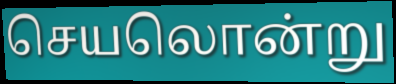
செயலொன்று